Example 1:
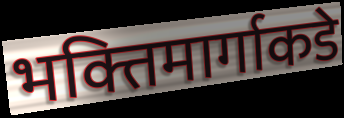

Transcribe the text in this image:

भक्तिमार्गाकडे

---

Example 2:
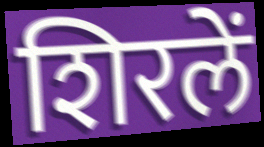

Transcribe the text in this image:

शिरलें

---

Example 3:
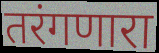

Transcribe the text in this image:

तरंगणारा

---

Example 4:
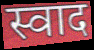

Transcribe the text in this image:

स्वाद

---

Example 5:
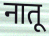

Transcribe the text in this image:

नातू